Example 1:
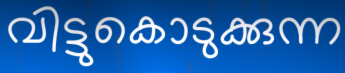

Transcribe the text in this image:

വിട്ടുകൊടുക്കുന്ന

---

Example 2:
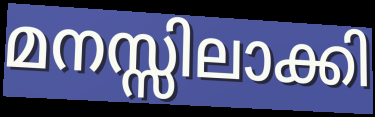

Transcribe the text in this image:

മനസ്സിലാക്കി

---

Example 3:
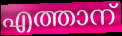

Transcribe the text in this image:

എത്താന്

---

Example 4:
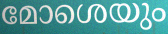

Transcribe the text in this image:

മോശെയും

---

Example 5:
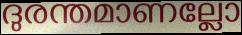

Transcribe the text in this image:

ദുരന്തമാണല്ലോ